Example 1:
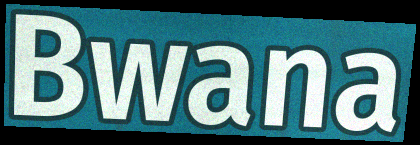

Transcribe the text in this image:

Bwana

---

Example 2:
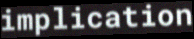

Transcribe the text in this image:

implication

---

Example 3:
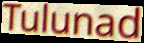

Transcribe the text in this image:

Tulunad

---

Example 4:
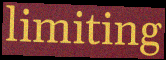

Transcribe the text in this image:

limiting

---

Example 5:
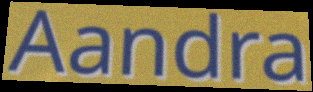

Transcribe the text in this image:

Aandra